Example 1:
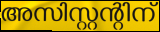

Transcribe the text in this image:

അസിസ്റ്റന്റിന്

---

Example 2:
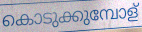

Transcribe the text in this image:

കൊടുക്കുമ്പോള്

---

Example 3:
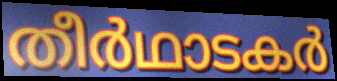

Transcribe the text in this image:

തീർഥാടകർ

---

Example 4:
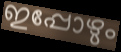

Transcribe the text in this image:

ഇപ്പോഴും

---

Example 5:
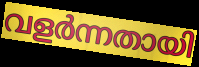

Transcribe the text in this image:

വളർന്നതായി